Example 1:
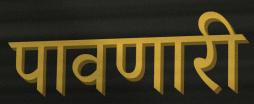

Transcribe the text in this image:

पावणारी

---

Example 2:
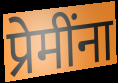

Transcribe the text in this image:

प्रेमींना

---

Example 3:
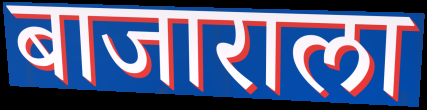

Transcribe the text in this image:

बाजाराला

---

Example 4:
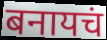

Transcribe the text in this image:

बनायचं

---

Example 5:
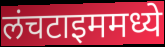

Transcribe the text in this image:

लंचटाइममध्ये